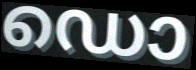
ഡൊ